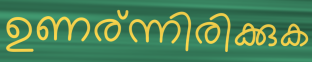
ഉണര്ന്നിരിക്കുക